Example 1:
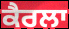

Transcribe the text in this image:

ਕੈਰਲਾ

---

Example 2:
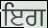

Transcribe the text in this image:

ਇਗ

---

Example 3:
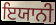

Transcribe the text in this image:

ਇਯਾਨੀ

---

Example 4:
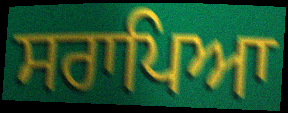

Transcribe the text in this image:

ਸਰਾਪਿਆ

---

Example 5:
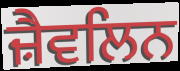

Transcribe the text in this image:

ਜ਼ੈਵਲਿਨ